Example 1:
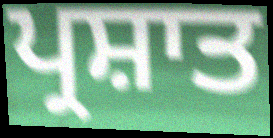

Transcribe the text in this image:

ਪ੍ਰਸ਼ਾਤ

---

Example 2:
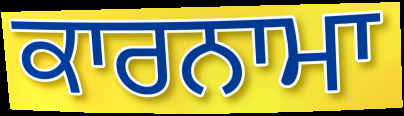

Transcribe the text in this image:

ਕਾਰਨਾਮਾ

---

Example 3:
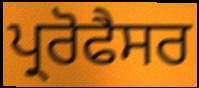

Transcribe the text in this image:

ਪ੍ਰਰੋਫੈਸਰ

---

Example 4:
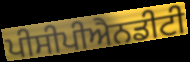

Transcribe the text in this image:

ਪੀਸੀਪੀਐਨਡੀਟੀ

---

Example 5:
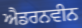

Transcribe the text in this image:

ਐਡਰਨਵੀਨ